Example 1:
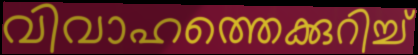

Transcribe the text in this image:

വിവാഹത്തെക്കുറിച്ച്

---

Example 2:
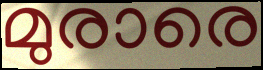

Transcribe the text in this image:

മുരാരെ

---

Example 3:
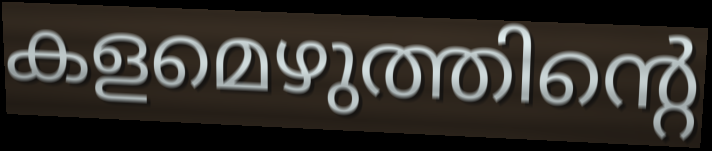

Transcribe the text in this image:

കളമെഴുത്തിന്റെ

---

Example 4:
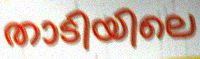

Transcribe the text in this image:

താടിയിലെ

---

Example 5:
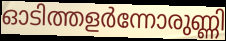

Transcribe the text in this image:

ഓടിത്തളർന്നോരുണ്ണി